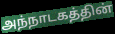
அந்நாடகத்தின்